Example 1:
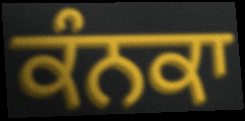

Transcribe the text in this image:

ਕੰਨਕਾ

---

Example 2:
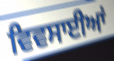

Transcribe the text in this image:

ਵਿਵਸਾਈਆਂ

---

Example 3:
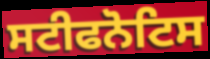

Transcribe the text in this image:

ਸਟੀਫਨੋਟਿਸ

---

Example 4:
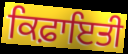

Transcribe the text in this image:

ਕਿਫ਼ਾਇਤੀ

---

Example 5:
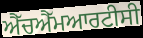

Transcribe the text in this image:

ਐੱਚਐੱਮਆਰਟੀਸੀ